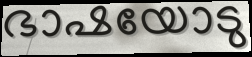
ഭാഷയോടു